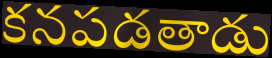
కనపడతాడు